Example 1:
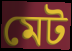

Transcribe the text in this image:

মেট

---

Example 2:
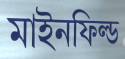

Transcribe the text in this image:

মাইনফিল্ড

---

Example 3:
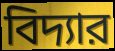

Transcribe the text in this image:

বিদ্যার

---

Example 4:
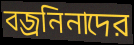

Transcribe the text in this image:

বজ্রনিনাদের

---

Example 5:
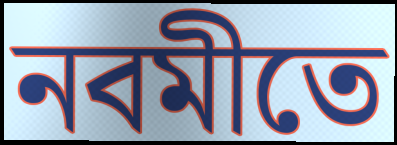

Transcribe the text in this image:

নবমীতে